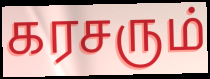
கரசரும்